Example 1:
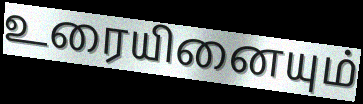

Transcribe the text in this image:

உரையினையும்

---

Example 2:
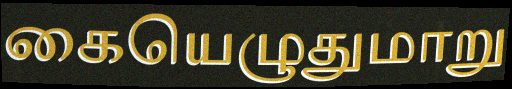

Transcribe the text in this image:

கையெழுதுமாறு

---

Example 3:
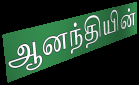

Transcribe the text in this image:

ஆனந்தியின்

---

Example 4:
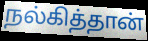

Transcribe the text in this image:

நல்கித்தான்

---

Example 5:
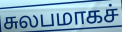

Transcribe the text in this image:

சுலபமாகச்